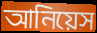
আনিয়েস